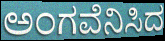
ಅಂಗವೆನಿಸಿದ